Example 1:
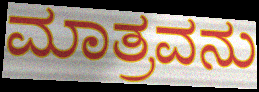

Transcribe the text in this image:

ಮಾತ್ರವನು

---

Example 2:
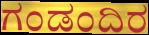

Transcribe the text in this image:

ಗಂಡಂದಿರ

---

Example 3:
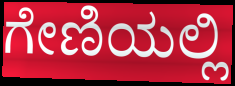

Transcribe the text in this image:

ಗೇಣಿಯಲ್ಲಿ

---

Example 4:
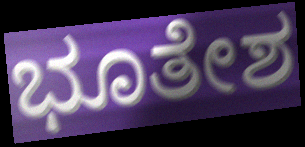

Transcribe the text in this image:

ಭೂತೇಶ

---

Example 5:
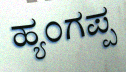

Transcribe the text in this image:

ಹ್ಯಂಗಪ್ಪ